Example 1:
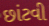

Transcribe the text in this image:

છાંટવી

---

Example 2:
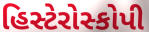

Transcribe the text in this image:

હિસ્ટેરોસ્કોપી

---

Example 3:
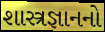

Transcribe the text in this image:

શાસ્ત્રજ્ઞાનનો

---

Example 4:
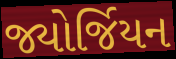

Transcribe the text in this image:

જ્યોર્જિયન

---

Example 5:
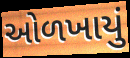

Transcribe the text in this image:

ઓળખાયું